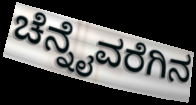
ಚೆನ್ನೈವರೆಗಿನ